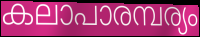
കലാപാരമ്പര്യം